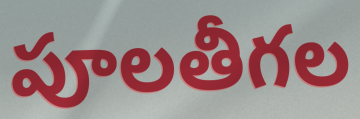
పూలతీగల